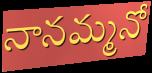
నానమ్మనో